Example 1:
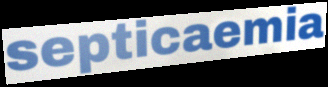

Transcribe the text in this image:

septicaemia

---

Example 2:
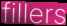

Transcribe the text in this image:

fillers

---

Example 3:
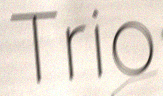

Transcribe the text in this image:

Trio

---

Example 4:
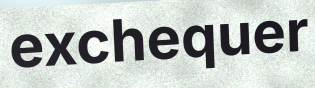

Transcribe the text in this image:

exchequer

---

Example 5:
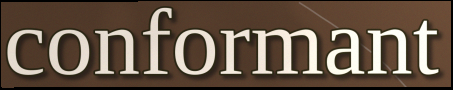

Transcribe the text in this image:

conformant